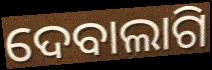
ଦେବାଲାଗି